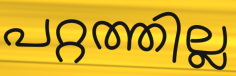
പറ്റത്തില്ല